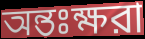
অন্তঃক্ষরা